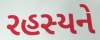
રહસ્યને